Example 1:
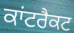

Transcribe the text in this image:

ਕਾਂਟਰੈਕਟ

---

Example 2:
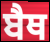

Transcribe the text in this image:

ਬੈਥ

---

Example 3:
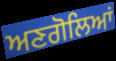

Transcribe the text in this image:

ਅਣਗੋਲਿਆਂ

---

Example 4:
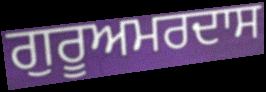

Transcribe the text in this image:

ਗੁਰੂਅਮਰਦਾਸ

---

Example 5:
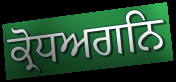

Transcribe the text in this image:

ਕ੍ਰੋਧਅਗਨਿ